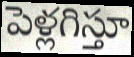
పెళ్లగిస్తూ